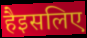
हैइसलिए